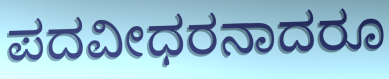
ಪದವೀಧರನಾದರೂ